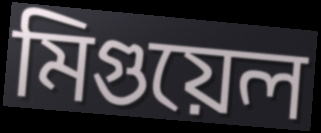
মিগুয়েল